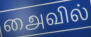
அைவில்